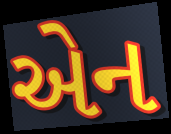
એન